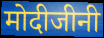
मोदीजीनी